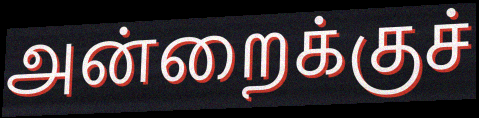
அன்றைக்குச்